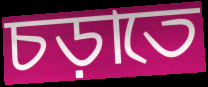
চড়াতে